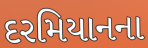
દરમિયાનના